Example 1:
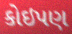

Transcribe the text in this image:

કોઇપણ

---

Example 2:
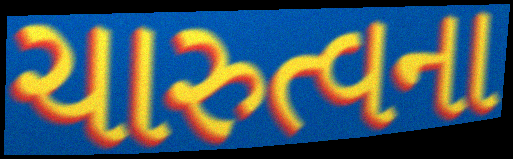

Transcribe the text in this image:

ચારુત્વના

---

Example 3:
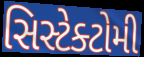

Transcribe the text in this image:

સિસ્ટેક્ટોમી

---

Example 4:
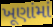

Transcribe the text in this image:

ખૂણાંમાં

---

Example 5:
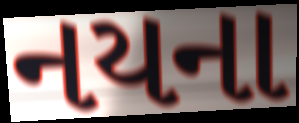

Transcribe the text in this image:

નયના